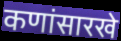
कणांसारखे